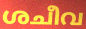
ശചീവ